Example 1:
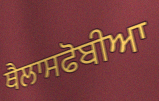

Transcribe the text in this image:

ਥੈਲਾਸਫੋਬੀਆ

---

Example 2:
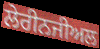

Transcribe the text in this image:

ਲੇਰੀਨਜੀਅਲ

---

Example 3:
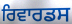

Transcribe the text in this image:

ਰਿਵਾਰਡਸ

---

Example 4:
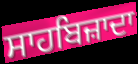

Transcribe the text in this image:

ਸਾਹਬਿਜ਼ਾਦਾ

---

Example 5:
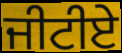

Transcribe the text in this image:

ਜੀਟੀਏ